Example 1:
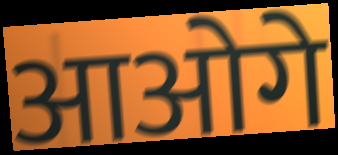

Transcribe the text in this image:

आओगे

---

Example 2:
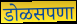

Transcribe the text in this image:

डोळसपणा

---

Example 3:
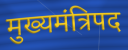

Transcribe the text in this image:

मुख्यमंत्रिपद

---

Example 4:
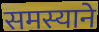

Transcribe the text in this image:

समस्याने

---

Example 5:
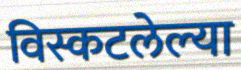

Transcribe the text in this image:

विस्कटलेल्या